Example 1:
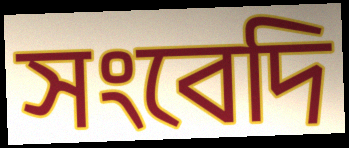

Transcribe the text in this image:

সংবেদি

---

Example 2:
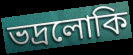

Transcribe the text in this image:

ভদ্রলোকি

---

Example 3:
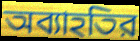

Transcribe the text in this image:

অব্যাহতির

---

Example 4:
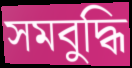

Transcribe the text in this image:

সমবুদ্ধি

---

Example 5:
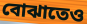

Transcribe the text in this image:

বোঝাতেও